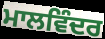
ਮਾਲਵਿੰਦਰ